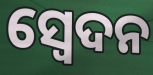
ସ୍ଵେଦନ